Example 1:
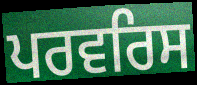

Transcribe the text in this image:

ਪਰਵਰਿਸ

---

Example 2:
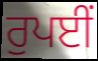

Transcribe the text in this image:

ਰੁਪਈਂ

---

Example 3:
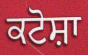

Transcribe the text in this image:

ਕਟੋਸ਼ਾ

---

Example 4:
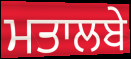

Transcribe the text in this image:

ਮਤਾਲਬੇ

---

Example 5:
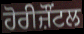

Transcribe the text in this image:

ਹੋਰੀਜ਼ੌਂਟਲ